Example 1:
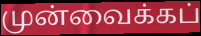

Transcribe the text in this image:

முன்வைக்கப்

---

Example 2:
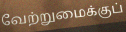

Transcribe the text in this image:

வேற்றுமைக்குப்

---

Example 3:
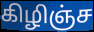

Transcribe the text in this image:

கிழிஞ்ச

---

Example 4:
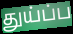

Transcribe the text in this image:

துய்ப்ப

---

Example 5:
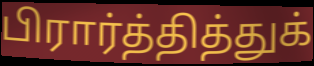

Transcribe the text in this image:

பிரார்த்தித்துக்